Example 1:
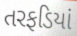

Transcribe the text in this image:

તરફડિયાં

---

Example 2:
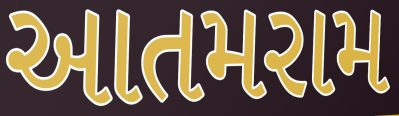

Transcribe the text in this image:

આતમરામ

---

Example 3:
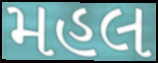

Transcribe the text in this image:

મહલ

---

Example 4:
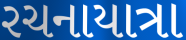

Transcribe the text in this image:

રચનાયાત્રા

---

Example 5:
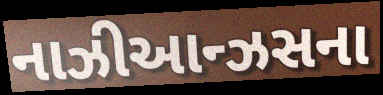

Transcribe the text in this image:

નાઝીઆન્ઝસના